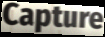
Capture